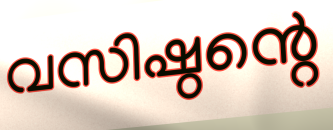
വസിഷ്ഠന്റെ